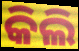
କିଲି